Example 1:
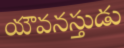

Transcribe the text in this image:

యౌవనస్తుడు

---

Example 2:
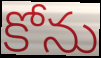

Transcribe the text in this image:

కోను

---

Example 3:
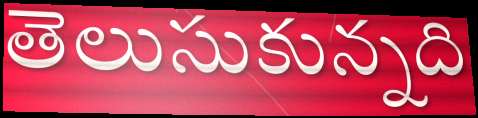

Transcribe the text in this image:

తెలుసుకున్నది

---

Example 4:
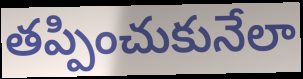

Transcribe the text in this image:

తప్పించుకునేలా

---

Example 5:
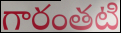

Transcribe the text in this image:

గారంతటి